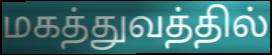
மகத்துவத்தில்